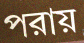
পরায়